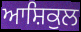
ਆਸ਼ਿਕੁਲ